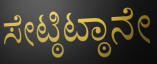
ಸೇಟ್ಠಿಟ್ಠಾನೇ